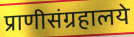
प्राणीसंग्रहालये